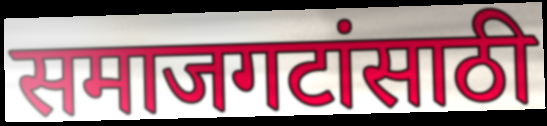
समाजगटांसाठी